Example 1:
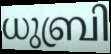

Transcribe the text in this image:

ധുബ്രി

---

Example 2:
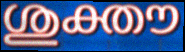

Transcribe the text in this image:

ശുക്തൗ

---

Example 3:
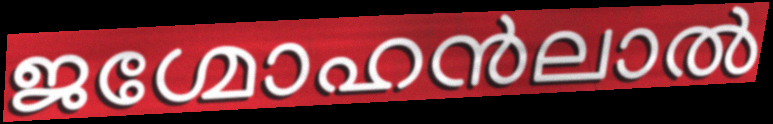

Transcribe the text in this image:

ജഗ്മോഹൻലാൽ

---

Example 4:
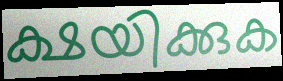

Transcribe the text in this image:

ക്ഷയിക്കുക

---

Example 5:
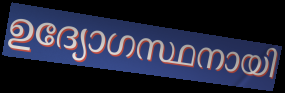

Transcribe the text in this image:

ഉദ്യോഗസ്ഥനായി